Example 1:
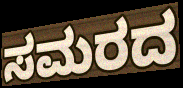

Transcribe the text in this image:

ಸಮರದ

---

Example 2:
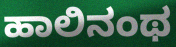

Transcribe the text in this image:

ಹಾಲಿನಂಥ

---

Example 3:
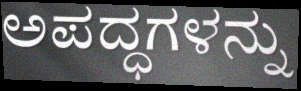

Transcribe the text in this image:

ಅಪದ್ಧಗಳನ್ನು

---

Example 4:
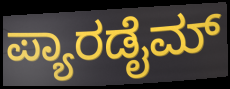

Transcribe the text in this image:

ಪ್ಯಾರಡೈಮ್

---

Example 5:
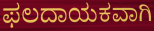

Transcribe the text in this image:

ಫಲದಾಯಕವಾಗಿ